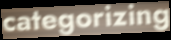
categorizing